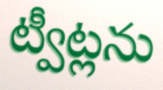
ట్వీట్లను